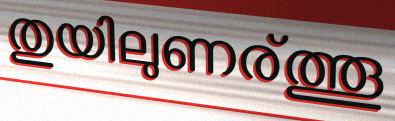
തുയിലുണര്ത്തൂ